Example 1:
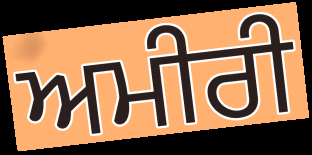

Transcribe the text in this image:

ਅਮੀਰੀ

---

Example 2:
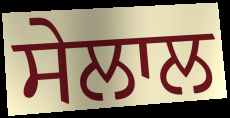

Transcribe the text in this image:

ਸੇਲਾਲ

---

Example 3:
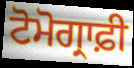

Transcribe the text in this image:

ਟੋਮੋਗ੍ਰਾਫ਼ੀ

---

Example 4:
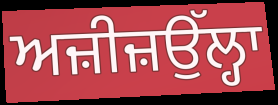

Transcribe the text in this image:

ਅਜ਼ੀਜ਼ਉੱਲ੍ਹਾ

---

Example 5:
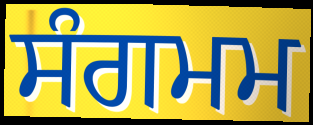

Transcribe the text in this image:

ਸੰਗਮਮ